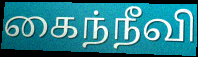
கைந்நீவி